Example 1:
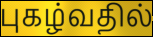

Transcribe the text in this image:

புகழ்வதில்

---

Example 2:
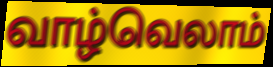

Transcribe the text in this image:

வாழ்வெலாம்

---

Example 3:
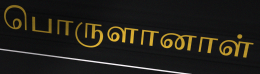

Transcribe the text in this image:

பொருளானாள்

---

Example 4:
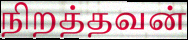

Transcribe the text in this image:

நிறத்தவன்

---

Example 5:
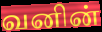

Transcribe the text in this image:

வனின்